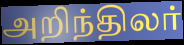
அறிந்திலர்